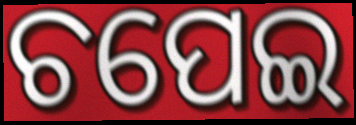
ଚପେଇ